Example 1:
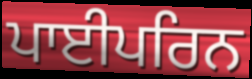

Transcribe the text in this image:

ਪਾਈਪਰਿਨ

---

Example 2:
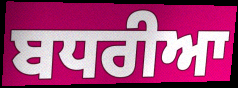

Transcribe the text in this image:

ਬਧਰੀਆ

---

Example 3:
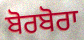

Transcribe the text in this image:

ਬੋਰਬੋਰਾ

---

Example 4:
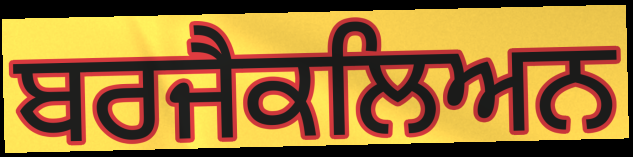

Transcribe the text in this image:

ਬਰਜੈਕਲਿਅਨ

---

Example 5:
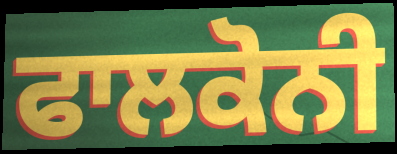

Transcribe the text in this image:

ਫਾਲਕੋਨੀ